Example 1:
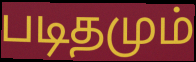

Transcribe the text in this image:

படிதமும்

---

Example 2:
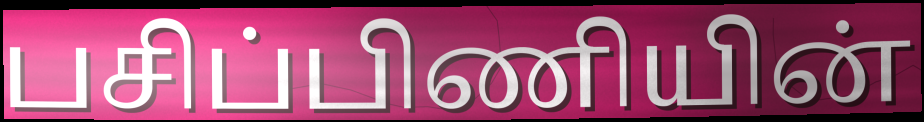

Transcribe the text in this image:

பசிப்பிணியின்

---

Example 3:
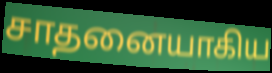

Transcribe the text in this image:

சாதனையாகிய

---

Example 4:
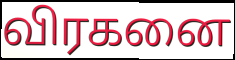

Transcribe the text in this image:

விரகனை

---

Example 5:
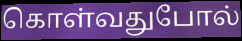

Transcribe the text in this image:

கொள்வதுபோல்